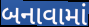
બનાવામાં